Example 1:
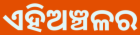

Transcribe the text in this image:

ଏହିଅଞ୍ଚଳର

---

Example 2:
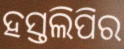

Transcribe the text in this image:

ହସ୍ତଲିପିର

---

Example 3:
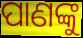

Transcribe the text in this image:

ପାଣଙ୍କୁ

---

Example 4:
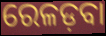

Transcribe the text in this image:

ରେଳଡ଼ବା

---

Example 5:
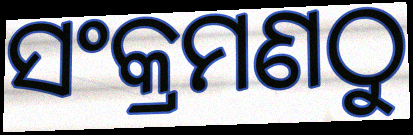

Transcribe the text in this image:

ସଂକ୍ରମଣଠୁ